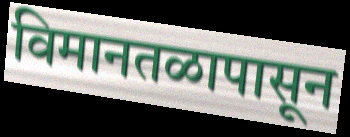
विमानतळापासून